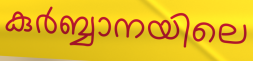
കുർബ്ബാനയിലെ